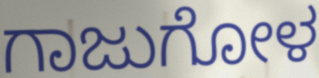
ಗಾಜುಗೋಳ